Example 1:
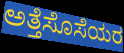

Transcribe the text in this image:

ಅತ್ತೆಸೊಸೆಯರ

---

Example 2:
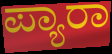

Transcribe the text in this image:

ಪ್ಯಾರಾ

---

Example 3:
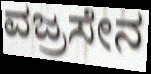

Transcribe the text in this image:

ವಜ್ರಸೇನ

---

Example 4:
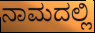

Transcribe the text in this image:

ನಾಮದಲ್ಲಿ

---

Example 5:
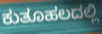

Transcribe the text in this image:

ಕುತೂಹಲದಲ್ಲಿ